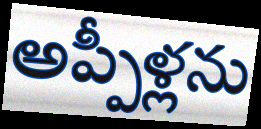
అప్పీళ్లను